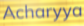
Acharyya